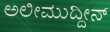
ಅಲೀಮುದ್ದೀನ್